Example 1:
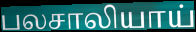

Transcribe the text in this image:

பலசாலியாய்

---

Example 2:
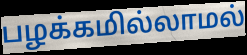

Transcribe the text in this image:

பழக்கமில்லாமல்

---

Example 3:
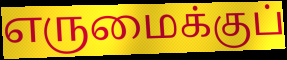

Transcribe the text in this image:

எருமைக்குப்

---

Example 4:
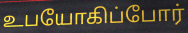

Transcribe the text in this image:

உபயோகிப்போர்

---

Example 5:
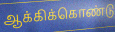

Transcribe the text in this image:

ஆக்கிக்கொண்டு